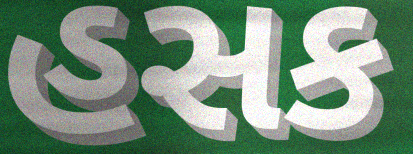
હસક